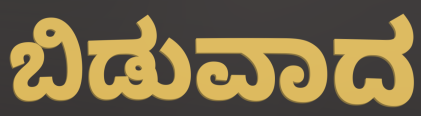
ಬಿಡುವಾದ